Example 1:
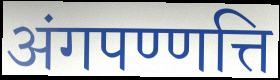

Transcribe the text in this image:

अंगपण्णत्ति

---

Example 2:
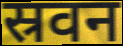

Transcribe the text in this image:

स्रवन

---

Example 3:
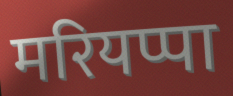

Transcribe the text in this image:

मरियप्पा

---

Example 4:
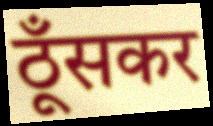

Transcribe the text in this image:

ठूँसकर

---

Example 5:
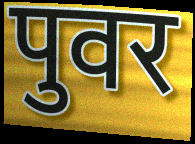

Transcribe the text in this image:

पुवर